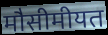
मौसीमीयत